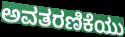
ಅವತರಣಿಕೆಯು